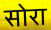
सोरा